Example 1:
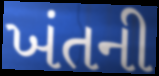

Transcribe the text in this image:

ખંતની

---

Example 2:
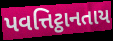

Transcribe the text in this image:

પવત્તિટ્ઠાનતાય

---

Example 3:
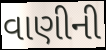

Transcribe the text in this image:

વાણીની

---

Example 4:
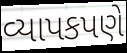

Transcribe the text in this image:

વ્યાપકપણે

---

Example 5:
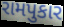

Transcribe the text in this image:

રામપુકાર